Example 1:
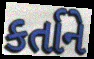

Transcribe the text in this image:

કર્તાને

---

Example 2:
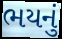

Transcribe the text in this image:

ભયનું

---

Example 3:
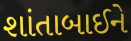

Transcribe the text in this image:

શાંતાબાઈને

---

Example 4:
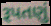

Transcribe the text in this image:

રૂપતણું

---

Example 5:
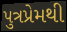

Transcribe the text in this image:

પુત્રપ્રેમથી